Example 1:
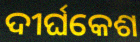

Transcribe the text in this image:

ଦୀର୍ଘକେଶ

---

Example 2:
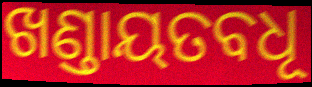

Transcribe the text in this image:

ଖଣ୍ଡାୟତବଧୂ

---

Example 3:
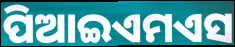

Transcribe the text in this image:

ପିଆଇଏମଏସ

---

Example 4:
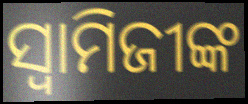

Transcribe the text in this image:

ସ୍ବାମିଜୀଙ୍କ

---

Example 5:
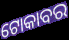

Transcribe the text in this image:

ଟୋକାବର